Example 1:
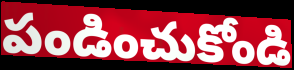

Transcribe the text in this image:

పండించుకోండి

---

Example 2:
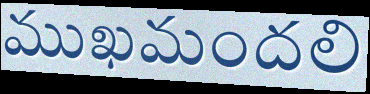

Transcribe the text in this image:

ముఖమందలి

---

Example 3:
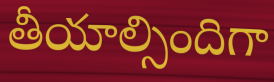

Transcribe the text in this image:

తీయాల్సిందిగా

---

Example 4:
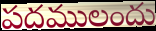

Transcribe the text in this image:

పదములందు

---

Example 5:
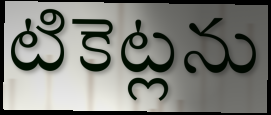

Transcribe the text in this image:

టికెట్లను